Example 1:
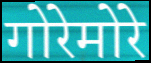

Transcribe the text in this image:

गोरेमोरे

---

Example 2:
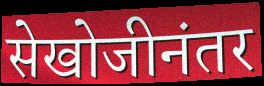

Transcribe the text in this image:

सेखोजीनंतर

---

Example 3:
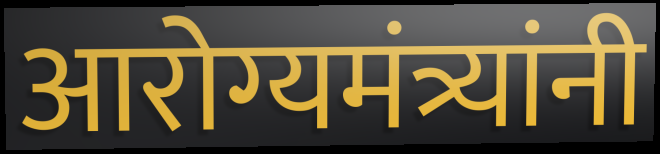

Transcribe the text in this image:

आरोग्यमंत्र्यांनी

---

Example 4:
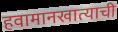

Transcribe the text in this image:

हवामानखात्याची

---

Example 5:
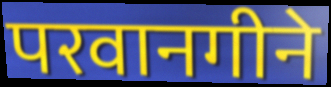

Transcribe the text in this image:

परवानगीने